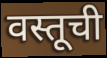
वस्तूची